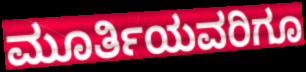
ಮೂರ್ತಿಯವರಿಗೂ